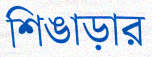
শিঙাড়ার